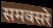
समवसरे